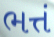
ભત્તં